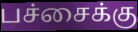
பச்சைக்கு